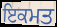
ਇਕਮਤ